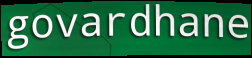
govardhane